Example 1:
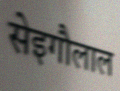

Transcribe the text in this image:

सेइगौलाल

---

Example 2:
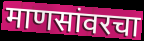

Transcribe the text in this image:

माणसांवरचा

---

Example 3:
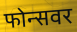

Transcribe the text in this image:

फोन्सवर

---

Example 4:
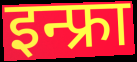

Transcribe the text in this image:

इन्फ्रा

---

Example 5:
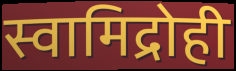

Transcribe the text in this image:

स्वामिद्रोही